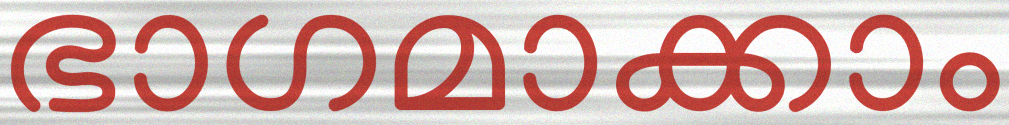
ഭാഗമാക്കാം